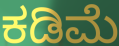
ಕಡಿಮೆ